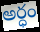
అర్ధం